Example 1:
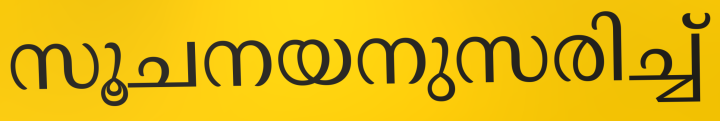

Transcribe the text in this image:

സൂചനയനുസരിച്ച്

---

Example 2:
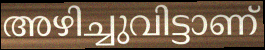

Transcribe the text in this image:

അഴിച്ചുവിട്ടാണ്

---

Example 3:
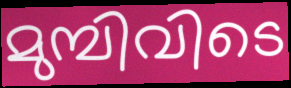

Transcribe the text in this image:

മുമ്പിവിടെ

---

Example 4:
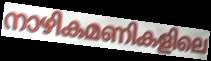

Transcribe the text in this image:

നാഴികമണികളിലെ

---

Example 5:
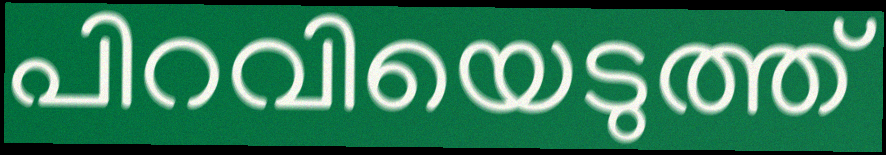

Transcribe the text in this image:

പിറവിയെടുത്ത്